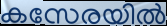
കസേരയിൽ